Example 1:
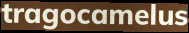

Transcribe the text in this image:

tragocamelus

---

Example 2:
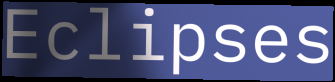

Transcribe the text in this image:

Eclipses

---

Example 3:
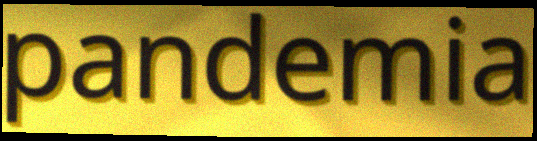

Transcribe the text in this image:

pandemia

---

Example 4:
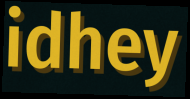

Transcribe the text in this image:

idhey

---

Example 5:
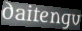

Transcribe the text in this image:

daitengu